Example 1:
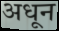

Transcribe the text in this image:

अधून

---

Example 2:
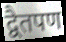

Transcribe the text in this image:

द्वैतपण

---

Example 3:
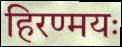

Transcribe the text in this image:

हिरण्मयः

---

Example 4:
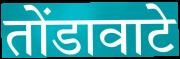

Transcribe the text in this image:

तोंडावाटे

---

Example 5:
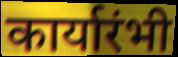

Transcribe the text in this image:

कार्यारंभी